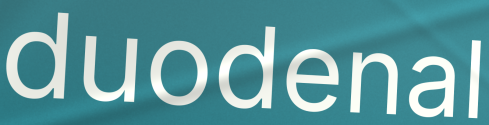
duodenal